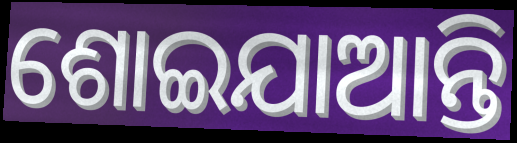
ଶୋଇଯାଆନ୍ତି